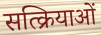
सत्क्रियाओं